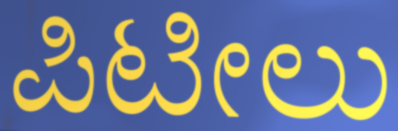
ಪಿಟೀಲು